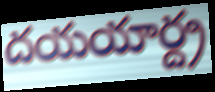
దయయార్ద్ర